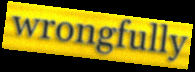
wrongfully